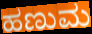
ಹಣುಮ